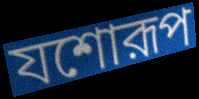
যশোরূপ